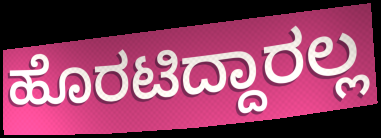
ಹೊರಟಿದ್ದಾರಲ್ಲ